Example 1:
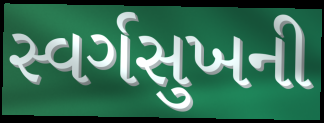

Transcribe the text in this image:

સ્વર્ગસુખની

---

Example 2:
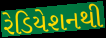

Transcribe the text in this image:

રેડિયેશનથી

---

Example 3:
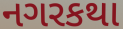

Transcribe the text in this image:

નગરકથા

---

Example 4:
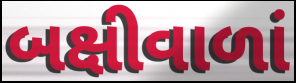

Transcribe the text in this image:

બક્ષીવાળાં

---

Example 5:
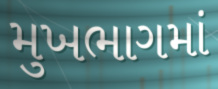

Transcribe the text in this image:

મુખભાગમાં